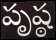
పృష్ఠ